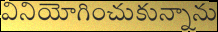
వినియోగించుకున్నాను